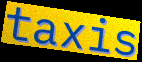
taxis